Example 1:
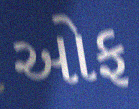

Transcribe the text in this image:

ઓફ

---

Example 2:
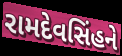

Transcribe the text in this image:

રામદેવસિંહને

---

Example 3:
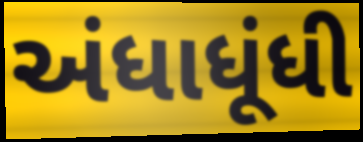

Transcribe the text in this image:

અંધાધૂંધી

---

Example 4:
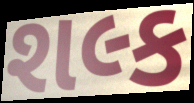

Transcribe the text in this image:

શલ્ક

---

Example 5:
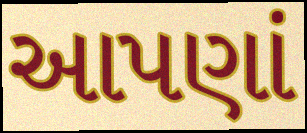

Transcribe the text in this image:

આપણાં